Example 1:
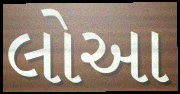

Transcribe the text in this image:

લોઆ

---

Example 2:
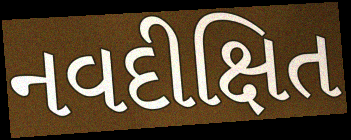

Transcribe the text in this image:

નવદીક્ષિત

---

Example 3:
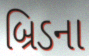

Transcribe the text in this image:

બ્રિડના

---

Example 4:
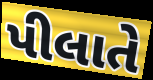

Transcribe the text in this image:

પીલાતે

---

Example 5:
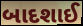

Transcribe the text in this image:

બાદશાઈ